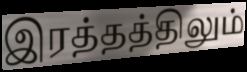
இரத்தத்திலும்